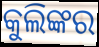
କୁଲିଙ୍କର